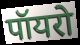
पॉयरो